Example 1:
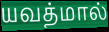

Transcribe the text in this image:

யவத்மால்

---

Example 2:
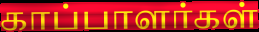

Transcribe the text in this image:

காப்பாளர்கள்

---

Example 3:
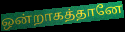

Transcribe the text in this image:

ஒன்றாகத்தானே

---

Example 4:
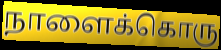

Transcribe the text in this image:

நாளைக்கொரு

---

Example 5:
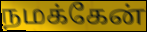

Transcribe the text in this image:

நமக்கேன்